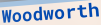
Woodworth